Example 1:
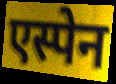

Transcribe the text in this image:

एस्पेन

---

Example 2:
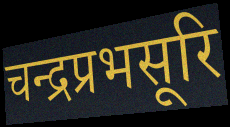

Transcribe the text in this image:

चन्द्रप्रभसूरि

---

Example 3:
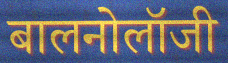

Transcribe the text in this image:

बालनोलॉजी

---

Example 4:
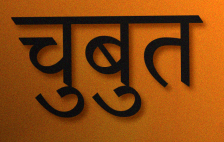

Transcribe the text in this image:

चुबुत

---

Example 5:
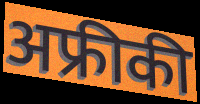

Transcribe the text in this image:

अफ्रीकी